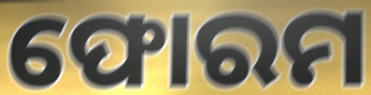
ଫୋରମ